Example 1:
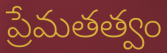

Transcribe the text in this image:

ప్రేమతత్వం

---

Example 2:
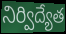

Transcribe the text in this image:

నిర్విద్యేత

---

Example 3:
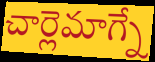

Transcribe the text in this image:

చార్లెమాగ్నే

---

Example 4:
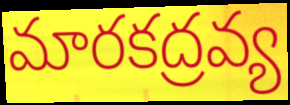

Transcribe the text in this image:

మారకద్రవ్య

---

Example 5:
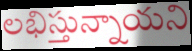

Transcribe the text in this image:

లభిస్తున్నాయని